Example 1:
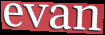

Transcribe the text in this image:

evan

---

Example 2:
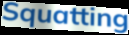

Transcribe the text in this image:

Squatting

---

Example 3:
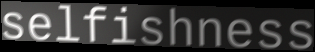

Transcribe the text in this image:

selfishness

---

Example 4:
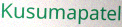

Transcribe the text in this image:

Kusumapatel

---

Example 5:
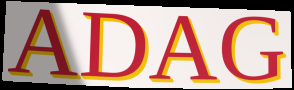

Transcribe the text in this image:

ADAG